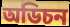
অডিচন